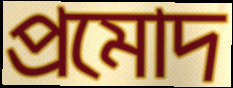
প্রমোদ